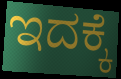
ಇದಕ್ಕೆ